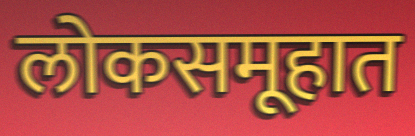
लोकसमूहात